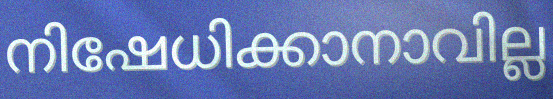
നിഷേധിക്കാനാവില്ല